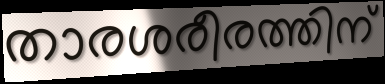
താരശരീരത്തിന്